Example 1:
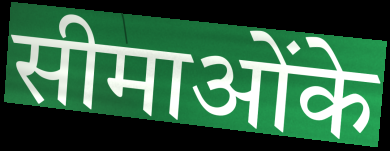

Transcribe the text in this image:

सीमाओंके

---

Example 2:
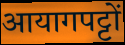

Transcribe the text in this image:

आयागपट्टों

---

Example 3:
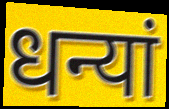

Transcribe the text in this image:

धन्यां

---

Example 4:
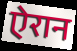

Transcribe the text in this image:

ऐरान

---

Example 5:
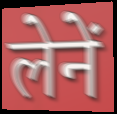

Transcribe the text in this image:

लेनें